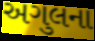
અગુલના